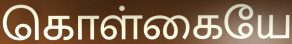
கொள்கையே